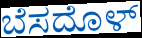
ಬೆಸದೊಳ್